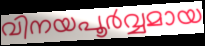
വിനയപൂർവ്വമായ